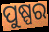
ପୁଷ୍ପର